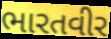
ભારતવીર